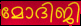
മോദിജി